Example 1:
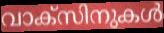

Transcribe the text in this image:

വാക്സിനുകൾ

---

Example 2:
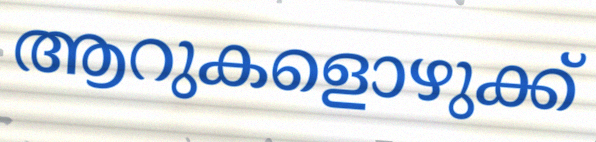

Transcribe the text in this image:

ആറുകളൊഴുക്ക്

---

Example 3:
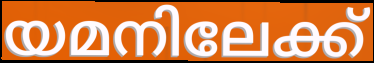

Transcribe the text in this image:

യമനിലേക്ക്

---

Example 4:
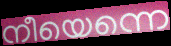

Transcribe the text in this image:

നീയെന്നെ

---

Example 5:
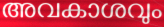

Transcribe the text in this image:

അവകാശവും